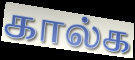
கால்க